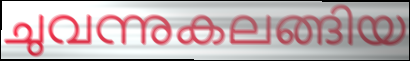
ചുവന്നുകലങ്ങിയ